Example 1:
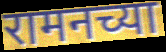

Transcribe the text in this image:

रामनच्या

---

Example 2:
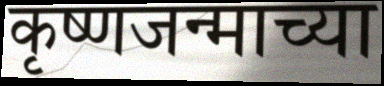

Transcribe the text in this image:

कृष्णजन्माच्या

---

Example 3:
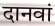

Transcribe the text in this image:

दानवां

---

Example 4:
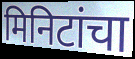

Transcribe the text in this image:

मिनिटांचा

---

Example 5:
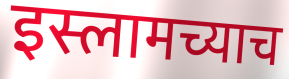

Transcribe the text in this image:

इस्लामच्याच